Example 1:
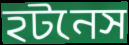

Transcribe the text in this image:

হটনেস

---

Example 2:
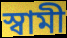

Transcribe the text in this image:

স্বামী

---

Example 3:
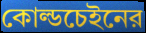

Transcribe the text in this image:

কোল্ডচেইনের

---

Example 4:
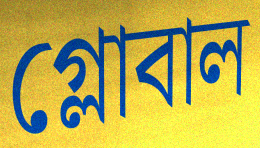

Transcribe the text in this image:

গ্লোবাল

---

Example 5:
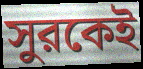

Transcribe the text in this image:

সুরকেই